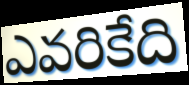
ఎవరికేది